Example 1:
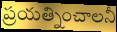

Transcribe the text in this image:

ప్రయత్నించాలనీ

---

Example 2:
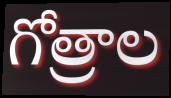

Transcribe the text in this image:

గోత్రాల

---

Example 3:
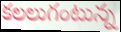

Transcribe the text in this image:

కలలుగంటున్న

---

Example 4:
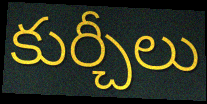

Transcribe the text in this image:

కుర్చీలు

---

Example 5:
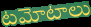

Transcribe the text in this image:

టమోటాలు